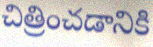
చిత్రించడానికి